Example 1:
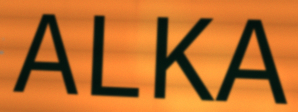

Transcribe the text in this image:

ALKA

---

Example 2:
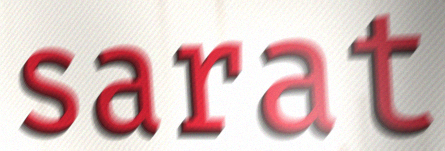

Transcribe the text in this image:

sarat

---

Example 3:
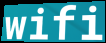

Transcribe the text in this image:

wifi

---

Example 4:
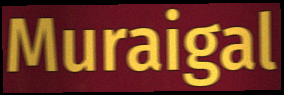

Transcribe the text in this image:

Muraigal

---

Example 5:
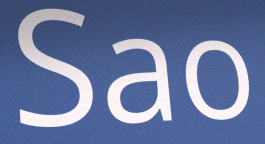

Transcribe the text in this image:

Sao